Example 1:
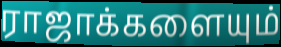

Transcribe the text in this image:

ராஜாக்களையும்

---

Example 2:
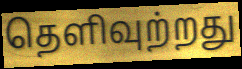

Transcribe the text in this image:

தெளிவுற்றது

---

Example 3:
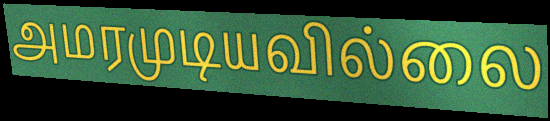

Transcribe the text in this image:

அமரமுடியவில்லை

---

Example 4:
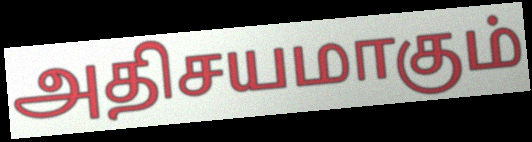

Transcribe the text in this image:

அதிசயமாகும்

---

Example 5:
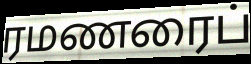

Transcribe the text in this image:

ரமணரைப்